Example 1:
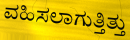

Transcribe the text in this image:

ವಹಿಸಲಾಗುತ್ತಿತ್ತು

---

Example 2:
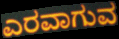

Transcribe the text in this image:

ಎರವಾಗುವ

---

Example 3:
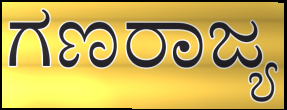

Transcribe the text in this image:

ಗಣರಾಜ್ಯ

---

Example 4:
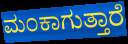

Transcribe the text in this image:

ಮಂಕಾಗುತ್ತಾರೆ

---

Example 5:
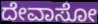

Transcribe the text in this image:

ದೇವಾಸೋ